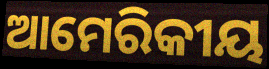
ଆମେରିକୀୟ